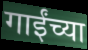
गाईंच्या